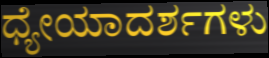
ಧ್ಯೇಯಾದರ್ಶಗಳು